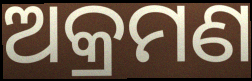
ଅକ୍ରମଣ